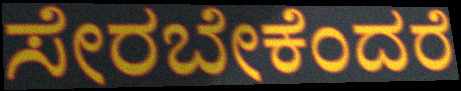
ಸೇರಬೇಕೆಂದರೆ